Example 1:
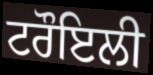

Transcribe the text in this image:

ਟਰੌਇਲੀ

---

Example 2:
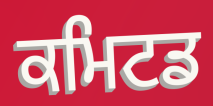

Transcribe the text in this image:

ਕਮਿਟਡ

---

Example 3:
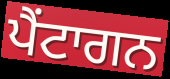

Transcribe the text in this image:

ਪੈਂਟਾਗਨ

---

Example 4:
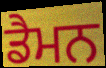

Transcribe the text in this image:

ਡੈਮਨ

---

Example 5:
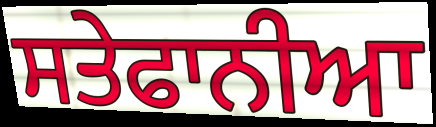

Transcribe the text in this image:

ਸਤੇਫਾਨੀਆ